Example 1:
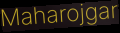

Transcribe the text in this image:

Maharojgar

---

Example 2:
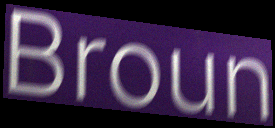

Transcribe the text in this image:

Broun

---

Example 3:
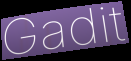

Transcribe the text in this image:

Gadit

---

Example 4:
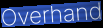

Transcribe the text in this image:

Overhand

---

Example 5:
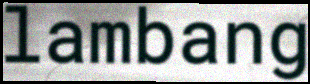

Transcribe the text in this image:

lambang